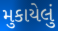
મુકાયેલું